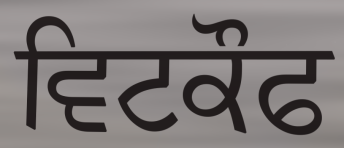
ਵਿਟਕੌਫ